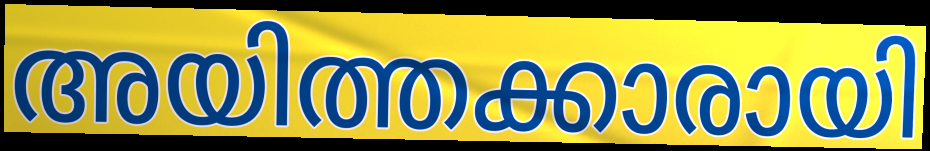
അയിത്തക്കാരായി